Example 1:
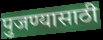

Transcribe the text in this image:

पुजण्यासाठी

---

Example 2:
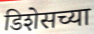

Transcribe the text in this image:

डिशेसच्या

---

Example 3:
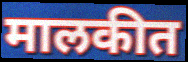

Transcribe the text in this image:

मालकीत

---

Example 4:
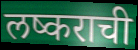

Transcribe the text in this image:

लष्कराची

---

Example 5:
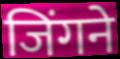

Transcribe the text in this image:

जिंगने